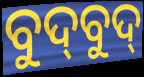
ବୁଦ୍‍ବୁଦ୍